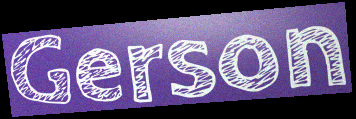
Gerson